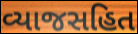
વ્યાજસહિત